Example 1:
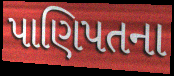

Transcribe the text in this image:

પાણિપતના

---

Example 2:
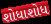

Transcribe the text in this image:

શોધાશોધ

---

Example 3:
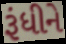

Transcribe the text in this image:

રૂંધીને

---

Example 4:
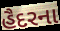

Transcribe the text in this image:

હૈદરના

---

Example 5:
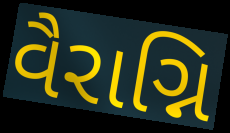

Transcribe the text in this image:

વૈરાગ્નિ